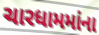
ચારધામમાંના